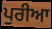
ਪੁਰੀਆ